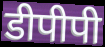
डीपीपी